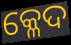
କ୍ଳେଦ